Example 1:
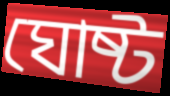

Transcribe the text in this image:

ঘোষ্ট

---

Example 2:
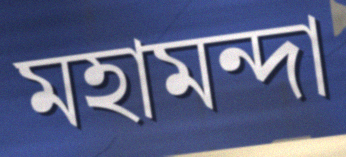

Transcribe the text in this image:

মহামন্দা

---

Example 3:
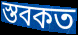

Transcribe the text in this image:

স্তবকত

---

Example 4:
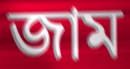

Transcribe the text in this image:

জাম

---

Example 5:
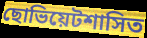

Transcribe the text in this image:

ছোভিয়েটশাসিত